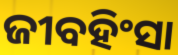
ଜୀବହିଂସା